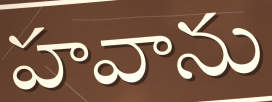
హవాను